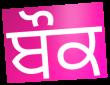
ਬੌਕ